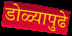
डोळ्यापुढे